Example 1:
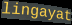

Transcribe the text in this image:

lingayat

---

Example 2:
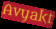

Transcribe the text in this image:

Avyakt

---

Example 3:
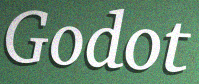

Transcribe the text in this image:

Godot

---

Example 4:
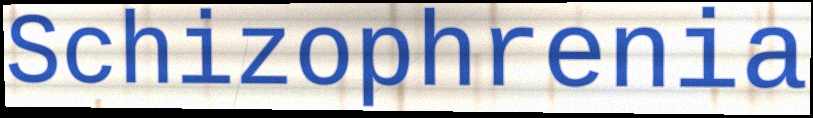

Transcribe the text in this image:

Schizophrenia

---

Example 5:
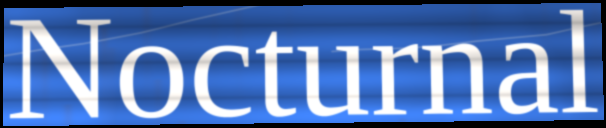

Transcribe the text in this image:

Nocturnal